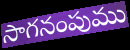
సాగనంపుము